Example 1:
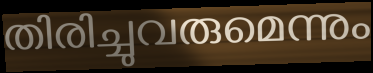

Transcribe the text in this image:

തിരിച്ചുവരുമെന്നും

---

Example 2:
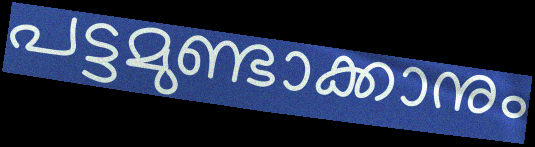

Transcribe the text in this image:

പട്ടമുണ്ടാക്കാനും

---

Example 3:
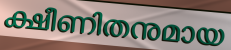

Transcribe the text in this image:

ക്ഷീണിതനുമായ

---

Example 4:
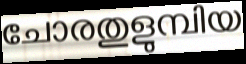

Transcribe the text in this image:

ചോരതുളുമ്പിയ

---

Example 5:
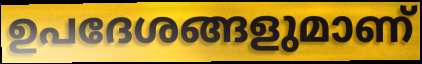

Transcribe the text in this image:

ഉപദേശങ്ങളുമാണ്